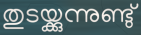
തുടയ്ക്കുന്നുണ്ടു്